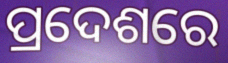
ପ୍ରଦେଶରେ